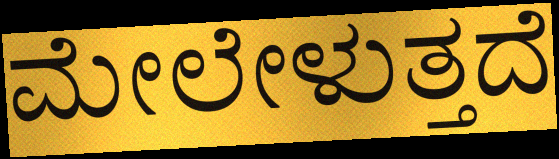
ಮೇಲೇಳುತ್ತದೆ